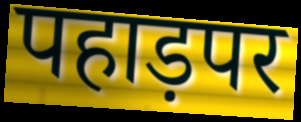
पहाड़पर